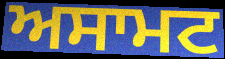
ਅਸਾਮਟ